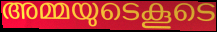
അമ്മയുടെകൂടെ